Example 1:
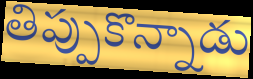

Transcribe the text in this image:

తిప్పుకొన్నాడు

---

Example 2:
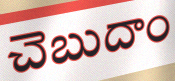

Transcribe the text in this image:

చెబుదాం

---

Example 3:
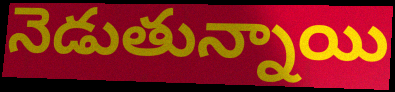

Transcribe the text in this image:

నెడుతున్నాయి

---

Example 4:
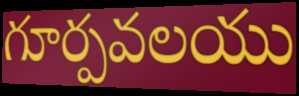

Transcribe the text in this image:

గూర్పవలయు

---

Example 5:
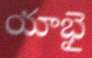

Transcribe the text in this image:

యాభై